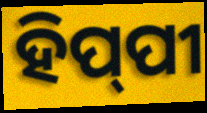
ହିପ୍‍ପୀ